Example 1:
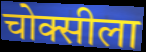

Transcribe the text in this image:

चोक्सीला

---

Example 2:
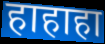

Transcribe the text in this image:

हाहाहा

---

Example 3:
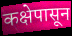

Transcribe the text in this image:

कक्षेपासून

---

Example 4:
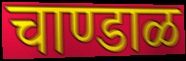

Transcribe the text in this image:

चाण्डाळ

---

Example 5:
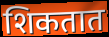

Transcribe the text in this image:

शिकतात